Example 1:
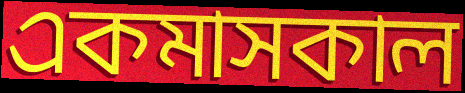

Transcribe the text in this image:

একমাসকাল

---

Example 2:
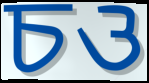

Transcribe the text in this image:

চও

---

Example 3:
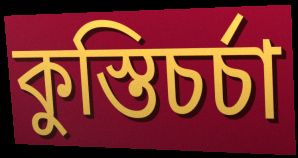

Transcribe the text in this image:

কুস্তিচর্চা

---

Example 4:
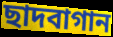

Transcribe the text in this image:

ছাদবাগান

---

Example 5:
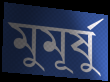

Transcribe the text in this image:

মুমূর্ষু